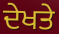
ਦੇਖਤੇ